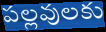
పల్లవులకు